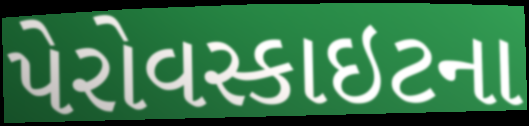
પેરોવસ્કાઇટના